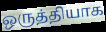
ஒருத்தியாக